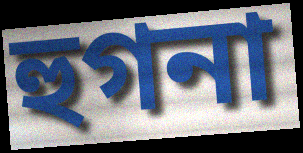
হুগনা